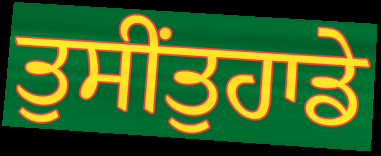
ਤੁਸੀਂਤੁਹਾਡੇ